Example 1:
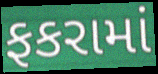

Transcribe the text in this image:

ફકરામાં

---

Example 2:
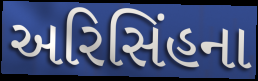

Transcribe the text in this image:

અરિસિંહના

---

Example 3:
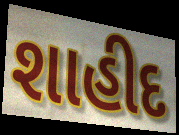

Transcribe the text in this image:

શાહીદ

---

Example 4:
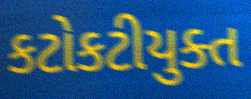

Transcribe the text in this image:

કટોકટીયુક્ત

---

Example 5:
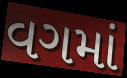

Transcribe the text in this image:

વગમાં